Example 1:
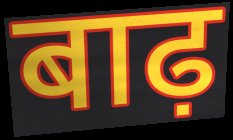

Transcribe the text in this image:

बाढ़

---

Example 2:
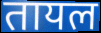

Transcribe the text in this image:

तायल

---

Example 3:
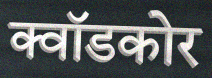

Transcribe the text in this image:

क्वॉडकोर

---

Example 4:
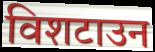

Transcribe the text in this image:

विशटाउन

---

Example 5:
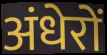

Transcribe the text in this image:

अंधेरों